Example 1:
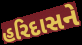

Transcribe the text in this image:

હરિદાસને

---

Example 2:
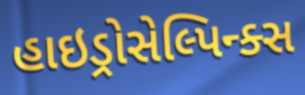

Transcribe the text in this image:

હાઇડ્રોસેલ્પિન્ક્સ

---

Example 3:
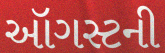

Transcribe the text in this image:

ઑગસ્ટની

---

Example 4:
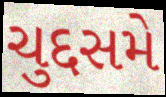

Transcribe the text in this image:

ચુદ્દસમે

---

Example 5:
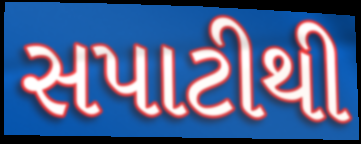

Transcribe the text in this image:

સપાટીથી